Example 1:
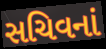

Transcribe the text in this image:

સચિવનાં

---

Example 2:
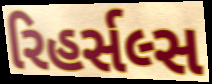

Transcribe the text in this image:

રિહર્સલ્સ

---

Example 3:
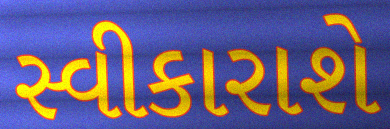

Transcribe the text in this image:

સ્વીકારાશે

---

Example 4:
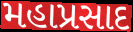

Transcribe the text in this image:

મહાપ્રસાદ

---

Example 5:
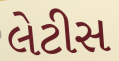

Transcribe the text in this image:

લેટીસ